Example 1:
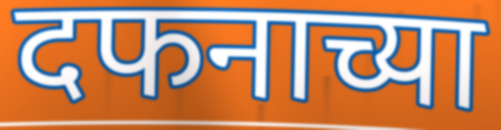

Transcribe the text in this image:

दफनाच्या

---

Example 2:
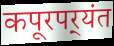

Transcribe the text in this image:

कपूरपर्यंत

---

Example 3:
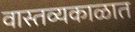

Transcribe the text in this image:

वास्तव्यकाळात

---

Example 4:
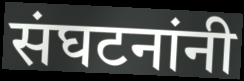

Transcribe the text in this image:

संघटनांनी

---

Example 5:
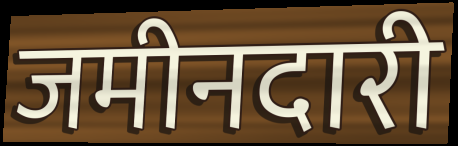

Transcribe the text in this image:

जमीनदारी